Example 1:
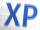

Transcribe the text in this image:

XP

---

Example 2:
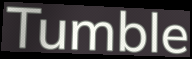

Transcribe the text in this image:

Tumble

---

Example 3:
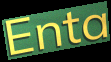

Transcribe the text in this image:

Enta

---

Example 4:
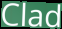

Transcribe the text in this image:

Clad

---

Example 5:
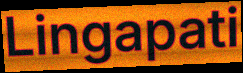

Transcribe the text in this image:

Lingapati